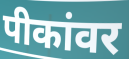
पीकांवर